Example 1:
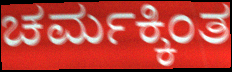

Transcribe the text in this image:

ಚರ್ಮಕ್ಕಿಂತ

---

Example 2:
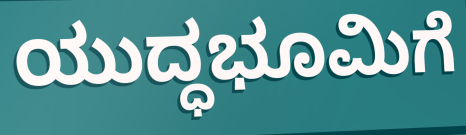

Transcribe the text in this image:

ಯುದ್ಧಭೂಮಿಗೆ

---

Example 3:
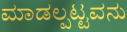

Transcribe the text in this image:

ಮಾಡಲ್ಪಟ್ಟವನು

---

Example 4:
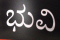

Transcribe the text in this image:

ಭುವಿ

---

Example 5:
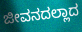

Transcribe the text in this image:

ಜೀವನದಲ್ಲಾದ